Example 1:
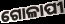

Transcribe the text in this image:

ଗୋଳାପୀ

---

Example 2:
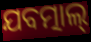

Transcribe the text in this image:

ଯବତ୍ମାଲ୍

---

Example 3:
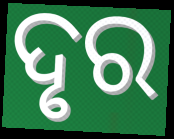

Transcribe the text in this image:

ଦୃର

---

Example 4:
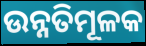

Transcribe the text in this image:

ଉନ୍ନତିମୂଳକ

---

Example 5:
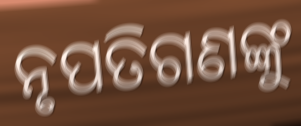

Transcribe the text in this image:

ନୃପତିଗଣଙ୍କୁ